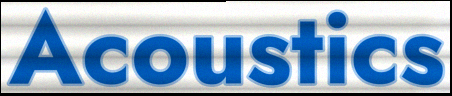
Acoustics